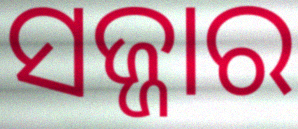
ସଜ୍ଜାର